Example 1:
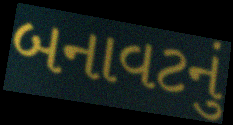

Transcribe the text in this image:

બનાવટનું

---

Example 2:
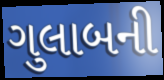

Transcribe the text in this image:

ગુલાબની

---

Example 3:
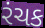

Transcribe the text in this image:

રંચક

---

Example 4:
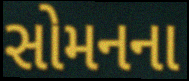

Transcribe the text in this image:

સોમનના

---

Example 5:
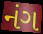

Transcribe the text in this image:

નંગ